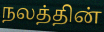
நலத்தின்